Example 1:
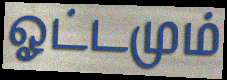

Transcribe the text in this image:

ஓட்டமும்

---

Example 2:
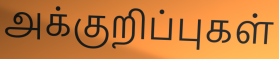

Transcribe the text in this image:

அக்குறிப்புகள்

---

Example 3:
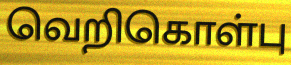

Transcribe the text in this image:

வெறிகொள்பு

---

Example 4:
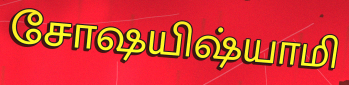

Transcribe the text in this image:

சோஷயிஷ்யாமி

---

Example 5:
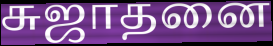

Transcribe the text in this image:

சுஜாதனை